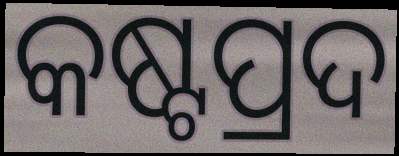
କଷ୍ଟପ୍ରଦ